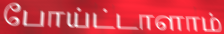
போய்ட்டாளாம்